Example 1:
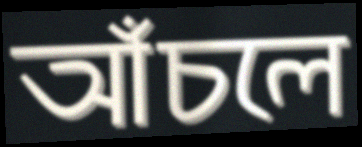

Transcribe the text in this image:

আঁচলে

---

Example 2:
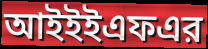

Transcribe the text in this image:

আইইইএফএর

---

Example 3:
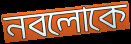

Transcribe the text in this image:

নবলোকে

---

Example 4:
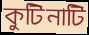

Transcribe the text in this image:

কুটিনাটি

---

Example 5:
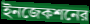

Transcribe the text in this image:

ইনজেকশনের